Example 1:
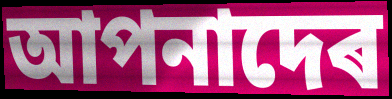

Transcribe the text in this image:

আপনাদেৰ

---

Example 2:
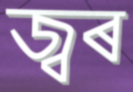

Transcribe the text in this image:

জ্বৰ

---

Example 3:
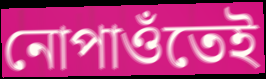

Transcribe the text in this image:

নোপাওঁতেই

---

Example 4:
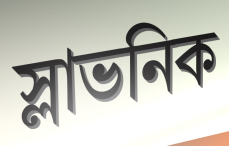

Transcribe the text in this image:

স্লাভনিক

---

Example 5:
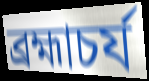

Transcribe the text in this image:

ব্ৰহ্মাচৰ্য